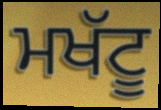
ਮਖੱਟੂ